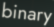
binary